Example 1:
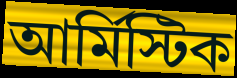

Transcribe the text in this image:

আর্মিস্টিক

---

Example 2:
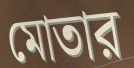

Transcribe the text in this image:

মোতার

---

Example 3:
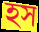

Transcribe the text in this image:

হস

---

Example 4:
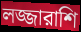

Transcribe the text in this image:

লজ্জারাশি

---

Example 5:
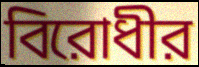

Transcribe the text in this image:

বিরোধীর